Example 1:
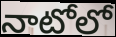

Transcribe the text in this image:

నాటోలో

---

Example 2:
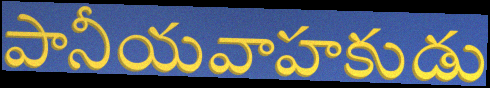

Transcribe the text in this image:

పానీయవాహకుడు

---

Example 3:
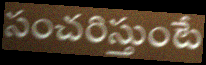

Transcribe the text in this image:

సంచరిస్తుంటే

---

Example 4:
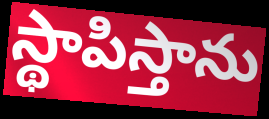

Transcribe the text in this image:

స్థాపిస్తాను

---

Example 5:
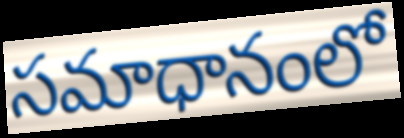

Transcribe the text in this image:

సమాధానంలో